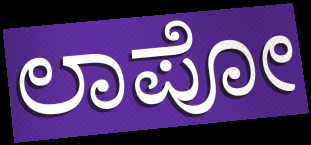
ಲಾಪೋ